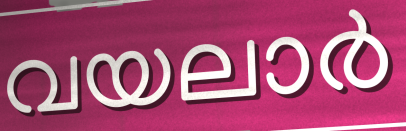
വയലാർ